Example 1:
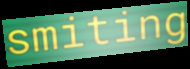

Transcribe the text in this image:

smiting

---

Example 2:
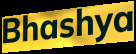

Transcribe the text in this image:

Bhashya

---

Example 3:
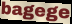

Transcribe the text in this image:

bagege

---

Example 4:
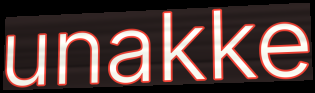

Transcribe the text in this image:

unakke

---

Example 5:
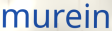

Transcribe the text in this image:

murein